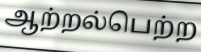
ஆற்றல்பெற்ற